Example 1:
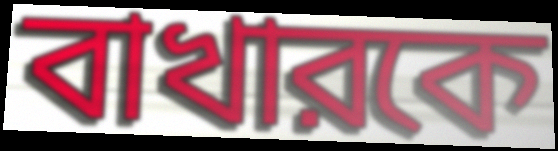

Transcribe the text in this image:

বাখারকে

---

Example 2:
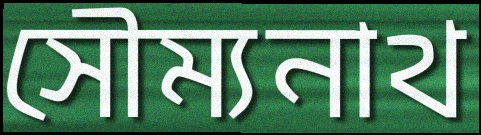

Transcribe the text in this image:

সৌম্যনাথ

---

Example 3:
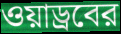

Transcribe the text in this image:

ওয়াড্রবের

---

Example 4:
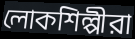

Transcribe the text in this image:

লোকশিল্পীরা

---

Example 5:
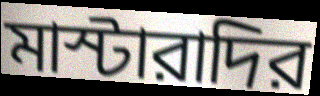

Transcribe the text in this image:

মাস্টারাদির